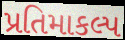
પ્રતિમાકલ્પ